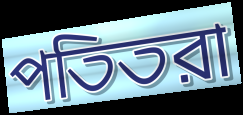
পতিতরা